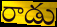
రాడు